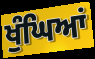
ਖੁੰਘਿਆਂ